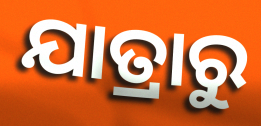
ଯାତ୍ରାରୁ